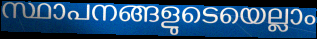
സ്ഥാപനങ്ങളുടെയെല്ലാം